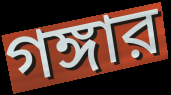
গঙ্গার